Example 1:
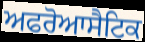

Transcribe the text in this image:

ਅਫਰੋਆਸੈਟਿਕ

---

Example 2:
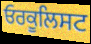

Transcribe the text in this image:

ਓਰਕੂਲਿਸਟ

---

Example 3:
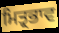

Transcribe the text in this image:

ਮਿਤ੍ਰਭਾਵ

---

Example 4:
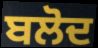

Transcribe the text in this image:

ਬਲੋਦ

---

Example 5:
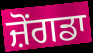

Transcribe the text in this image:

ਜ਼ੋਂਗਡਾ